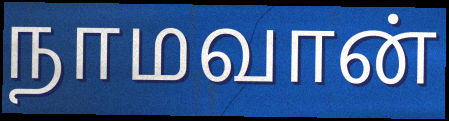
நாமவான்